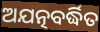
ଅଯତ୍ନବର୍ଦ୍ଧିତ